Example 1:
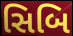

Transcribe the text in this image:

સિબિ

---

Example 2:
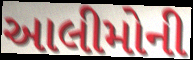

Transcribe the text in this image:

આલીમોની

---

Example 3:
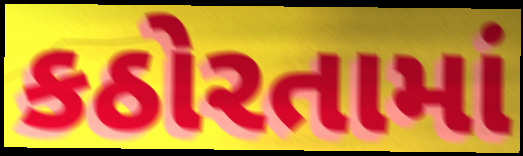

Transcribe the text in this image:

કઠોરતામાં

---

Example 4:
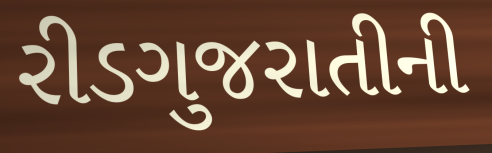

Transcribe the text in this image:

રીડગુજરાતીની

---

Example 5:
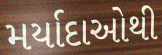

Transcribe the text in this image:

મર્યાદાઓથી